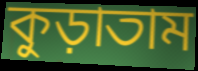
কুড়াতাম